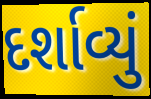
દર્શાવ્યું